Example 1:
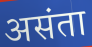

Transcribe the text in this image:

असंता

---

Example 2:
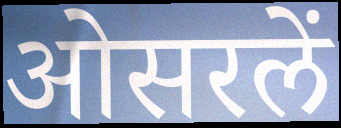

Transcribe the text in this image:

ओसरलें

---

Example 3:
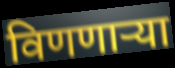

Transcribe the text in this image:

विणणाऱ्या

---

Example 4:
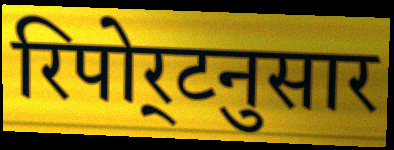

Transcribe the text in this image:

रिपोर्टनुसार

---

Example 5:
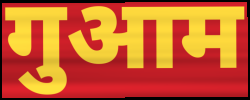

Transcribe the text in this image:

गुआम